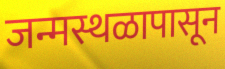
जन्मस्थळापासून